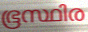
ഭൂസ്ഥിര